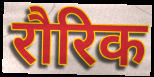
रौरिक